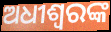
ଅଧୀଶ୍ୱରଙ୍କ